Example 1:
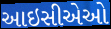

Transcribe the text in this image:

આઇસીએઓ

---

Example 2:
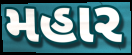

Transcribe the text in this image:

મહાર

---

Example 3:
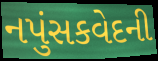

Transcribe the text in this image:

નપુંસકવેદની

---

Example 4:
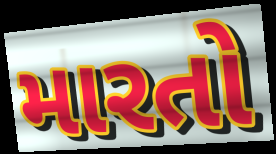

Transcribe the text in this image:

મારતો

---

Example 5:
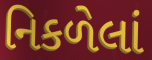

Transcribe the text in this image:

નિકળેલાં